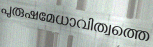
പുരുഷമേധാവിത്വത്തെ